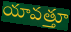
యావత్తూ